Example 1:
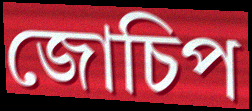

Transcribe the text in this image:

জোচিপ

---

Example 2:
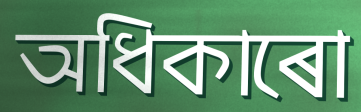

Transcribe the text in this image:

অধিকাৰো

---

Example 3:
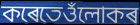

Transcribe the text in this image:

কৰেতেওঁলোকৰ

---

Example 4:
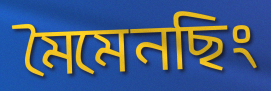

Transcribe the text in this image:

মৈমেনছিং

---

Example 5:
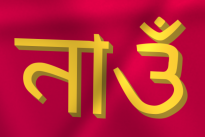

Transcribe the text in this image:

নাওঁ